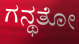
ಗನ್ಥತೋ